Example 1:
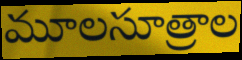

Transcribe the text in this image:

మూలసూత్రాల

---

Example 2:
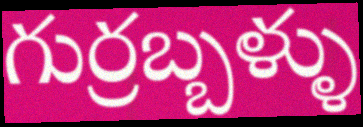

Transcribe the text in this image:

గుర్రబ్బళ్ళు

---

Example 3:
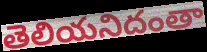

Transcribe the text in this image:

తెలియనిదంతా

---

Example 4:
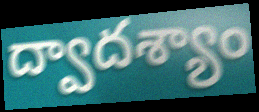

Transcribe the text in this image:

ద్వాదశ్యాం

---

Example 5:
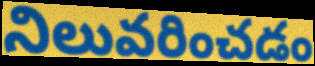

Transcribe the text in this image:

నిలువరించడం